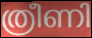
ത്രീണി